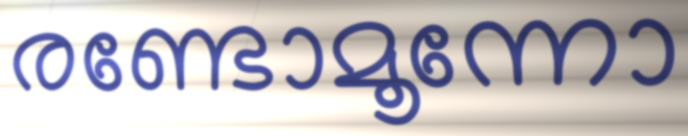
രണ്ടോമൂന്നോ